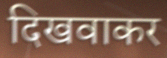
दिखवाकर